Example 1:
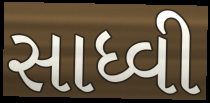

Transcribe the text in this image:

સાધ્વી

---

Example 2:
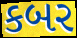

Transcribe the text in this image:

કબર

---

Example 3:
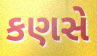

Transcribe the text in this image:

કણસે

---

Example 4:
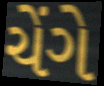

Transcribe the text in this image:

ચેંગે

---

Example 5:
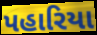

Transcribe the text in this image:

પહારિયા